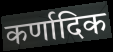
कर्णादिक